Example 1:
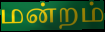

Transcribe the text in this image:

மன்றம்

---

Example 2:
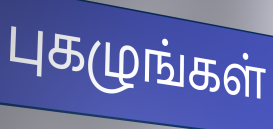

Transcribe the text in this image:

புகழுங்கள்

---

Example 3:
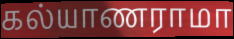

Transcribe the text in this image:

கல்யாணராமா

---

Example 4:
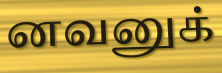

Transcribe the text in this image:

னவனுக்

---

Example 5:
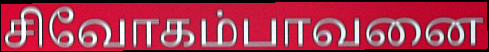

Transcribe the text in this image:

சிவோகம்பாவனை